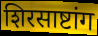
शिरसाष्टांग